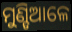
ମୁଣ୍ଡିଆଳେ